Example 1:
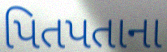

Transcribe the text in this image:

પિતપતાના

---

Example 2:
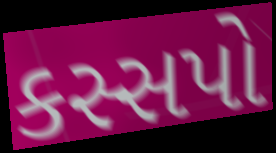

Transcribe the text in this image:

કસ્સપો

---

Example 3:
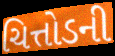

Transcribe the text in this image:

ચિત્તોડની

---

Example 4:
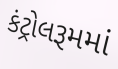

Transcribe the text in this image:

કંટ્રોલરૂમમાં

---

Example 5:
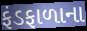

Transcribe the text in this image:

ફંડફાળાના